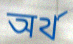
অর্থ